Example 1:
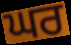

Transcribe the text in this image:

ਘਰ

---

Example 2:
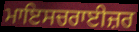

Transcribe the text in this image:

ਮਾਇਸਚਰਾਈਜ਼ਰ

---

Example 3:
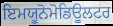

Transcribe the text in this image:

ਇਮਯੂਨੋਮੋਡਿਊਲਟਰ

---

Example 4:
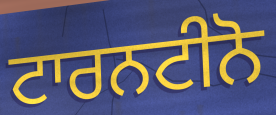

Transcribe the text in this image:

ਟਾਰਨਟੀਨੋ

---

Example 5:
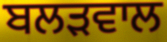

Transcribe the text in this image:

ਬਲੜਵਾਲ